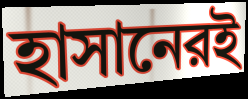
হাসানেরই